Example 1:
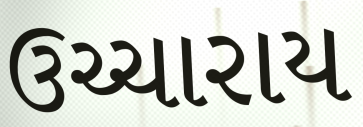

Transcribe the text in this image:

ઉચ્ચારાય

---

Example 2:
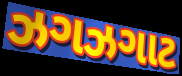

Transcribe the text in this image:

ઝગઝગાટ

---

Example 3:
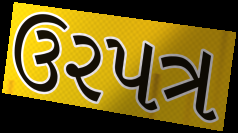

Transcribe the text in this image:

ઉરપત્ર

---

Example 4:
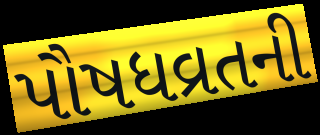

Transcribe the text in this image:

પૌષધવ્રતની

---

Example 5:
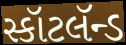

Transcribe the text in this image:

સ્કૉટલૅન્ડ